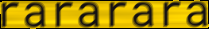
rararara